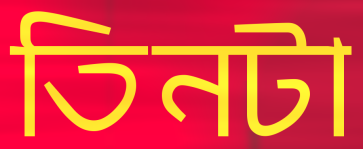
তিনটা